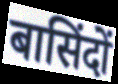
बासिंदों